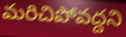
మరిచిపోవద్దని